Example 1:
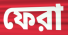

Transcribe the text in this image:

ফেরা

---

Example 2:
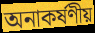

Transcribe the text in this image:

অনাকর্ষণীয়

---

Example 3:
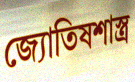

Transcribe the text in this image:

জ্যোতিষশাস্ত্র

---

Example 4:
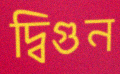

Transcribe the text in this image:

দ্বিগুন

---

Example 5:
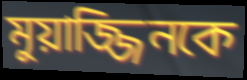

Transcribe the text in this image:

মুয়াজ্জিনকে